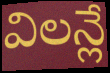
విలన్లే